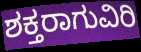
ಶಕ್ತರಾಗುವಿರಿ